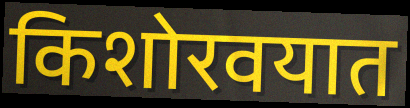
किशोरवयात